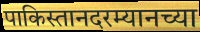
पाकिस्तानदरम्यानच्या